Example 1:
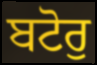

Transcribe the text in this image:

ਬਟੋਰੁ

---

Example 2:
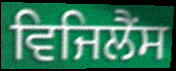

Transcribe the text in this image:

ਵਿਜਿਲੈਂਸ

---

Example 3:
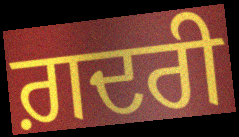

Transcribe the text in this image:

ਗ਼ਦਰੀ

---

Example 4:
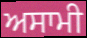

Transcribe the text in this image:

ਅਸਾਮੀ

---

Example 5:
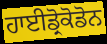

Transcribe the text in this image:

ਹਾਈਡ੍ਰੋਕੋਡੋਨ